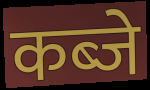
कब्‍जे